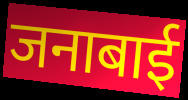
जनाबाई